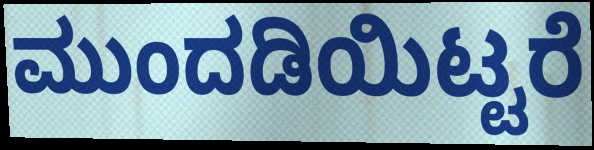
ಮುಂದಡಿಯಿಟ್ಟರೆ